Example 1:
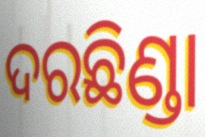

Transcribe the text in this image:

ଦରଛିଣ୍ଡା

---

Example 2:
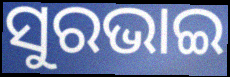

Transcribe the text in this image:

ସୁରଭାଇ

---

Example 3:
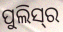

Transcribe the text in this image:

ପୁଲିସ୍‍ର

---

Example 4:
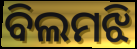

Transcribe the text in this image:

ବିଲମଝି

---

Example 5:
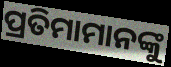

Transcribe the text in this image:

ପ୍ରତିମାମାନଙ୍କୁ